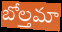
బోల్తమా